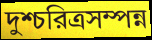
দুশ্চরিত্রসম্পন্ন